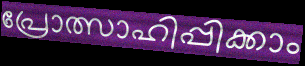
പ്രോത്സാഹിപ്പിക്കാം